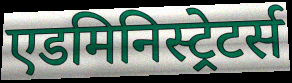
एडमिनिस्ट्रेटर्स